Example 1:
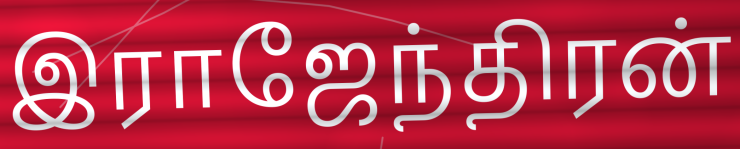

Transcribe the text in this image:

இராஜேந்திரன்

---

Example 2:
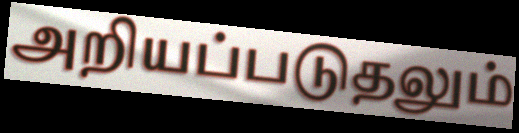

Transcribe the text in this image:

அறியப்படுதலும்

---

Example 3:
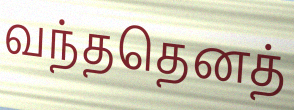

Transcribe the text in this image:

வந்ததெனத்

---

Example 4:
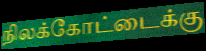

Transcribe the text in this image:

நிலக்கோட்டைக்கு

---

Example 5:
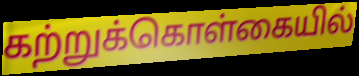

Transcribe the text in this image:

கற்றுக்கொள்கையில்